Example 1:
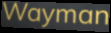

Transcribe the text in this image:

Wayman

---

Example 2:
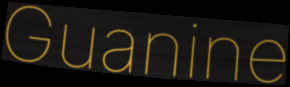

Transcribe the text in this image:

Guanine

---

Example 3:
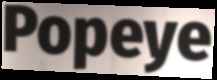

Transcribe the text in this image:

Popeye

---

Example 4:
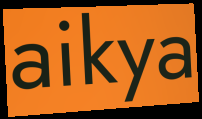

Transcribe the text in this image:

aikya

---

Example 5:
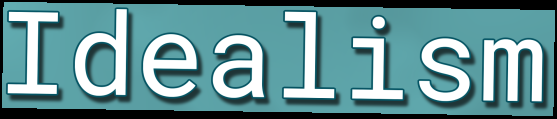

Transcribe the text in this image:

Idealism